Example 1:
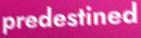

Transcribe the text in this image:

predestined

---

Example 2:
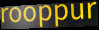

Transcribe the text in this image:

rooppur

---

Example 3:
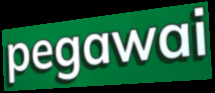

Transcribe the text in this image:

pegawai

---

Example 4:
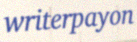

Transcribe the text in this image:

writerpayon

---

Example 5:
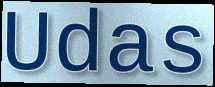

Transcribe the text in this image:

Udas